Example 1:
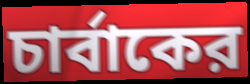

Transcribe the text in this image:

চার্বাকের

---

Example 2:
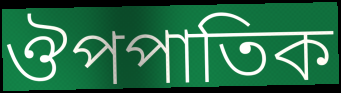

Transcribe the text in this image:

ঔপপাতিক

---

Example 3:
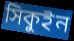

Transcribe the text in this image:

সিকুইন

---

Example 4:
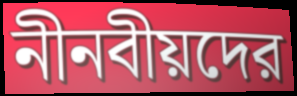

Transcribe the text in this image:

নীনবীয়দের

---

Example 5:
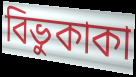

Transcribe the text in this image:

বিভুকাকা